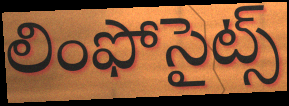
లింఫోసైట్స్